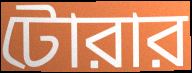
টোরার